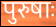
पुरुषाः